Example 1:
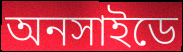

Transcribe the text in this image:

অনসাইডে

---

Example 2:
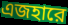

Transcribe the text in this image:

এজহারে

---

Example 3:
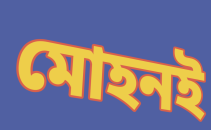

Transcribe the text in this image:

মোহনই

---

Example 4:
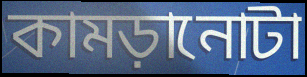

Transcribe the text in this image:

কামড়ানোটা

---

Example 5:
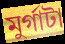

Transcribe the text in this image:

মুর্গাটা